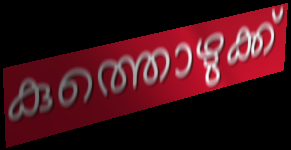
കുത്തൊഴുക്ക്